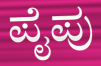
ಪೈಪು